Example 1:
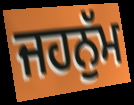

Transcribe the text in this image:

ਜਹਨੁੱਮ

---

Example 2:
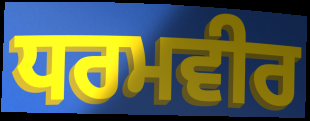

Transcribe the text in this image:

ਧਰਮਵੀਰ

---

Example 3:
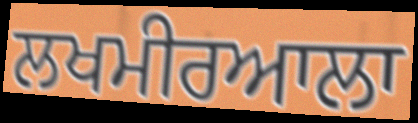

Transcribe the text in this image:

ਲਖਮੀਰਆਲਾ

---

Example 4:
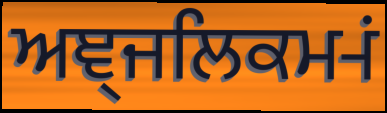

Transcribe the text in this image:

ਅਞ੍ਜਲਿਕਮ੍ਮਂ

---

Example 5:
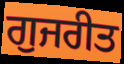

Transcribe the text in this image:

ਗੁਜਰੀਤ